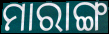
ମାରାଙ୍ଗ